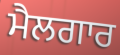
ਮੈਲਗਾਰ